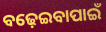
ବଢ଼େଇବାପାଇଁ